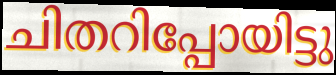
ചിതറിപ്പോയിട്ടു